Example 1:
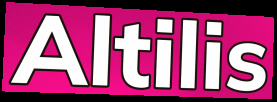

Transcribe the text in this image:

Altilis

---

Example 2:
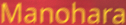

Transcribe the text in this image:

Manohara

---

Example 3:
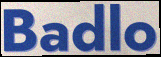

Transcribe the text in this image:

Badlo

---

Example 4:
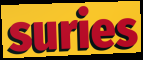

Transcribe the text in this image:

suries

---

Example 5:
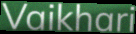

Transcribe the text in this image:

Vaikhari